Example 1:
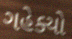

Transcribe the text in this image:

ગહેક્યો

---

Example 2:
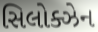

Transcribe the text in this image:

સિલોક્ઝેન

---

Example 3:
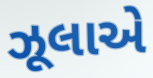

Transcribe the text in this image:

ઝૂલાએ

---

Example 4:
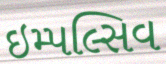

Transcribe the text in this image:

ઇમ્પલ્સિવ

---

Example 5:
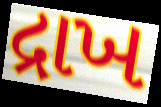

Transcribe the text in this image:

દ્રાખ